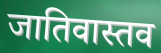
जातिवास्तव